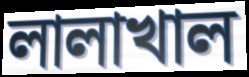
লালাখাল